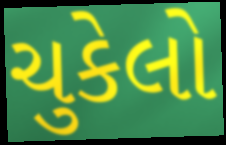
ચુકેલો